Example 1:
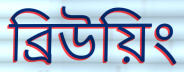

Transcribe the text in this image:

ব্রিউয়িং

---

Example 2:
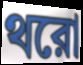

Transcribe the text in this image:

থরো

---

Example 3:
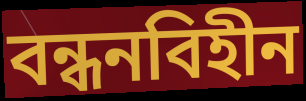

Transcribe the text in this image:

বন্ধনবিহীন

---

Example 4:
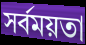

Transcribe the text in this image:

সর্বময়তা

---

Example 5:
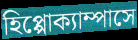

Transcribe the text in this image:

হিপ্পোক্যাম্পাসে